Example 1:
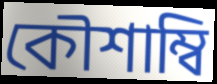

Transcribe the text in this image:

কৌশাম্বি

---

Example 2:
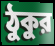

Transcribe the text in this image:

ঠুকুর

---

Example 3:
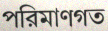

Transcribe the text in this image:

পরিমাণগত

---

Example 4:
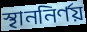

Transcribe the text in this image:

স্থাননির্ণয়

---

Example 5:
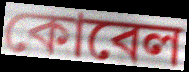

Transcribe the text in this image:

কোবেল